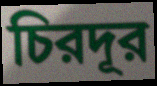
চিরদূর